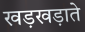
खड़खड़ाते